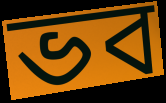
ভব